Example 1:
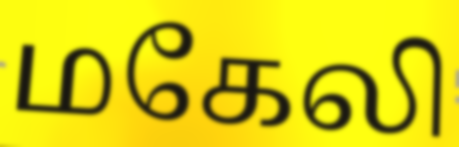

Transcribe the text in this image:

மகேலி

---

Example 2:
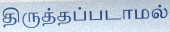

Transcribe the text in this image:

திருத்தப்படாமல்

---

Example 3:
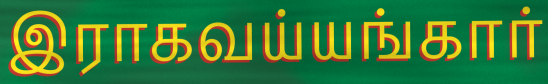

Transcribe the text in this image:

இராகவய்யங்கார்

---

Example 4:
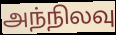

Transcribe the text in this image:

அந்நிலவு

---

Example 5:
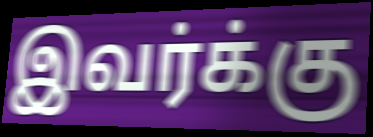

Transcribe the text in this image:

இவர்க்கு